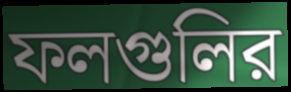
ফলগুলির